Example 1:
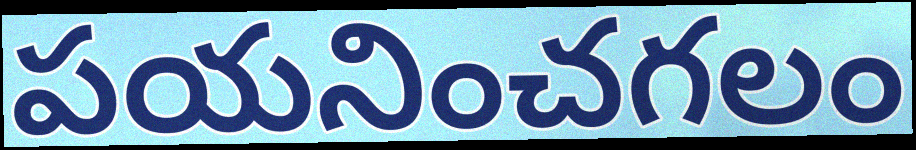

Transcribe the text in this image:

పయనించగలం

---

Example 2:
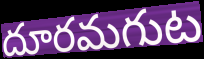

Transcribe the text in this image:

దూరమగుట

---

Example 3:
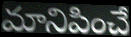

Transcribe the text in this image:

మానిపించే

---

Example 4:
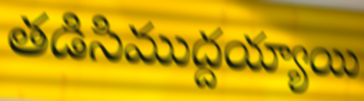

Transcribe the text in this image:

తడిసిముద్దయ్యాయి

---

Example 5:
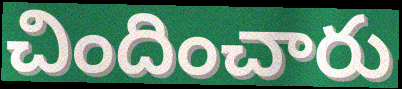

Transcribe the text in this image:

చిందించారు